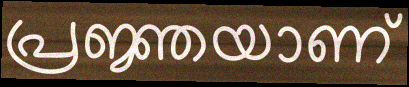
പ്രജ്ഞയാണ്